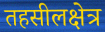
तहसीलक्षेत्र